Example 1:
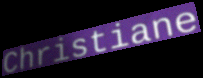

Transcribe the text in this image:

Christiane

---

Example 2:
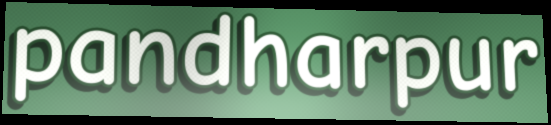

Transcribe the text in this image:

pandharpur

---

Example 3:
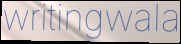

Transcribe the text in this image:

writingwala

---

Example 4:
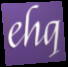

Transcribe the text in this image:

ehq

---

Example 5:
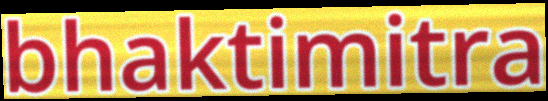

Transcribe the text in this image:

bhaktimitra